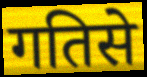
गतिसे